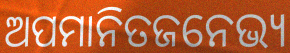
ଅପମାନିତଜନେଭ୍ୟ